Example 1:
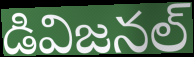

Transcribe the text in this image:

డివిజనల్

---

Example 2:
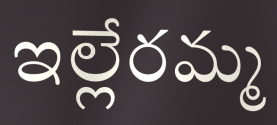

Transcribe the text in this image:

ఇల్లేరమ్మ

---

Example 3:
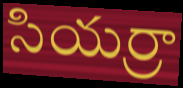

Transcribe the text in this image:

సియర్రా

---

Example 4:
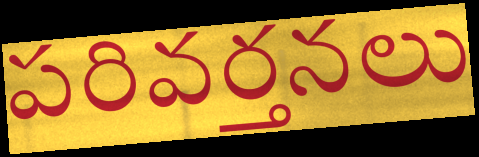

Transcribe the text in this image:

పరివర్తనలు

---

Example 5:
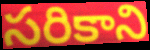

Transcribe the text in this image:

సరికాని